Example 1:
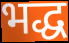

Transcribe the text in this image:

भद्ध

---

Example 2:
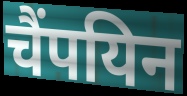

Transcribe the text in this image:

चैंपयिन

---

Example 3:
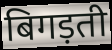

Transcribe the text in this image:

बिगड़ती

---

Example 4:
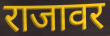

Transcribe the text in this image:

राजावर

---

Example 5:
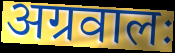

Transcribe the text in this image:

अग्रवालः